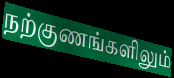
நற்குணங்களிலும்